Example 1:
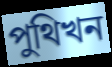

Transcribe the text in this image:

পুথিখন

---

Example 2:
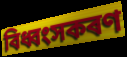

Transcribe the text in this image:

বিধ্বংসকৰণ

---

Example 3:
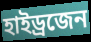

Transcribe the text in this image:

হাইড্ৰজেন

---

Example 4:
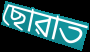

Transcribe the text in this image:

ছোৱাত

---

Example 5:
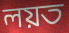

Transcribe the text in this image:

লয়ত